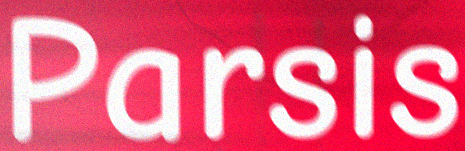
Parsis